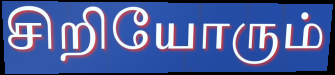
சிறியோரும்